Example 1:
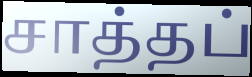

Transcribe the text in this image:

சாத்தப்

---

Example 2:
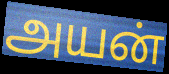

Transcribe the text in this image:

அயன்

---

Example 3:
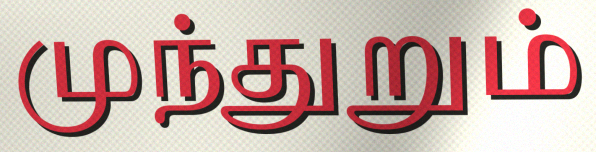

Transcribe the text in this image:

முந்துறும்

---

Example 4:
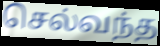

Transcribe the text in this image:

செல்வந்த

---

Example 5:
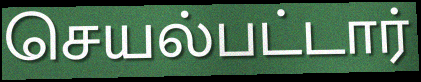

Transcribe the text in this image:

செயல்பட்டார்